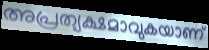
അപ്രത്യക്ഷമാവുകയാണ്